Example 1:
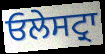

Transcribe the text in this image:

ਓਲੇਸਟ੍ਰਾ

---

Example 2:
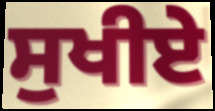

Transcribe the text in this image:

ਸੁਖੀਏ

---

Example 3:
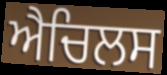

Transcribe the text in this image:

ਐਚਿਲਸ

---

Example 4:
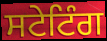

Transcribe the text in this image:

ਸਟੇਟਿੰਗ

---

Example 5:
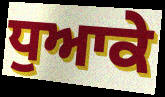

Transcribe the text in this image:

ਧੁਆਕੇ